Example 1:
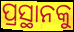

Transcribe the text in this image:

ପ୍ରସ୍ଥାନକୁ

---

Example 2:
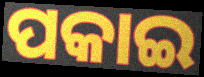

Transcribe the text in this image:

ପକାଇ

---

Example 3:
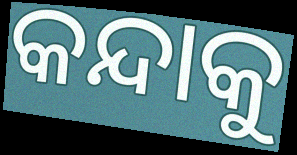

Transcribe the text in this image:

କନ୍ଦାକୁ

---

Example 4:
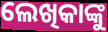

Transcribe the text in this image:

ଲେଖିକାଙ୍କୁ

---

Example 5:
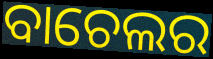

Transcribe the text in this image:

ବାଚେଲର